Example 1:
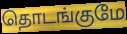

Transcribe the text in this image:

தொடங்குமே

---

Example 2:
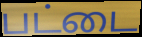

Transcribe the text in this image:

பட்டை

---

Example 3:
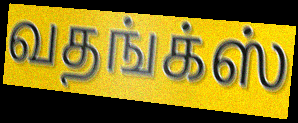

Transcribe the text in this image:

வதங்க்ஸ்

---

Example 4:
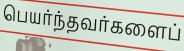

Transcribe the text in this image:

பெயர்ந்தவர்களைப்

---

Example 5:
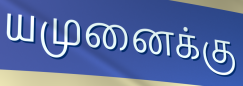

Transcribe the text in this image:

யமுனைக்கு